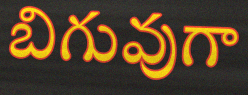
బిగువుగా